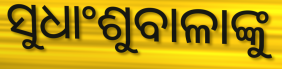
ସୁଧାଂଶୁବାଳାଙ୍କୁ